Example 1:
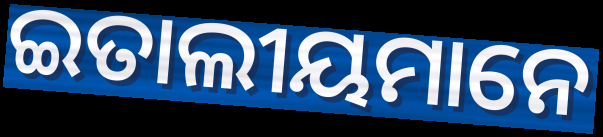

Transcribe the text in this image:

ଇତାଲୀୟମାନେ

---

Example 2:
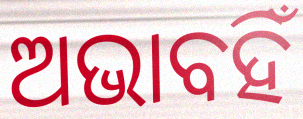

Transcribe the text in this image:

ଅଭାବହିଁ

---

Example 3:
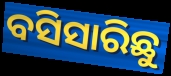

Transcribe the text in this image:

ବସିସାରିଛୁ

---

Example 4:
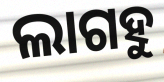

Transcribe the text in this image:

ଲାଗହୁ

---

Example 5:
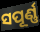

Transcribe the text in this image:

ସପୂର୍ଣ୍ଣ